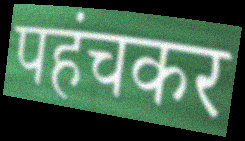
पहंचकर